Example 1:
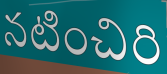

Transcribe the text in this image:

నటించిరి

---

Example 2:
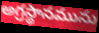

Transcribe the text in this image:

అగ్రస్థానమును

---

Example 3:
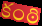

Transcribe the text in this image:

కంఠి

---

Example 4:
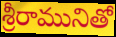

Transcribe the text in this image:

శ్రీరామునితో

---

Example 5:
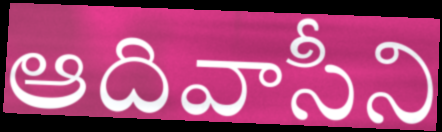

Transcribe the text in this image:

ఆదివాసీని